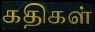
கதிகள்